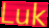
Luk